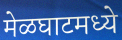
मेळघाटमध्ये